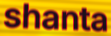
shanta